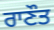
ਰਾਣੌਤ